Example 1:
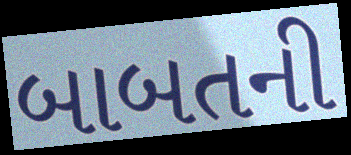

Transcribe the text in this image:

બાબતની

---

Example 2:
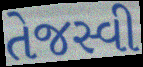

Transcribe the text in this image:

તેજસ્વી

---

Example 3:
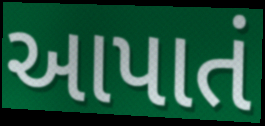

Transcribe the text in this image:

આપાતં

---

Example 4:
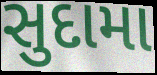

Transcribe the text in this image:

સુદામા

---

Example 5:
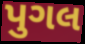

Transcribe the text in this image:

પુગલ